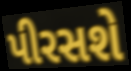
પીરસશે